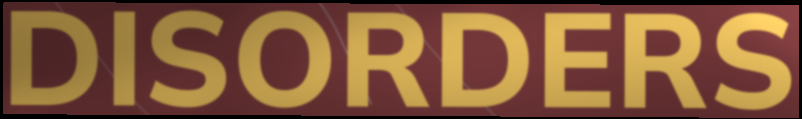
DISORDERS